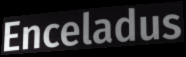
Enceladus